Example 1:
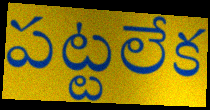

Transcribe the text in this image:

పట్టలేక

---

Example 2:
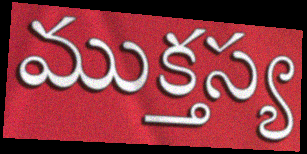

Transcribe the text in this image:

ముక్తస్య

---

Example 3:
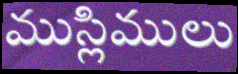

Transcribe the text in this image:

ముస్లిములు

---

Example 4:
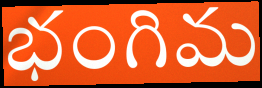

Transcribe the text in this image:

భంగిమ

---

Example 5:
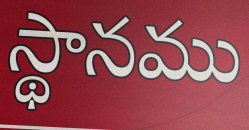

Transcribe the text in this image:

స్థానము